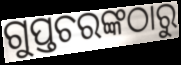
ଗୁପ୍ତଚରଙ୍କଠାରୁ